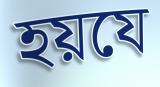
হয়যে